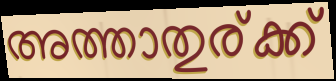
അത്താതുര്ക്ക്